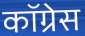
कॉग्रेस